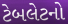
ટેબલેટનો